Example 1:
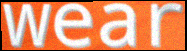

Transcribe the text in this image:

wear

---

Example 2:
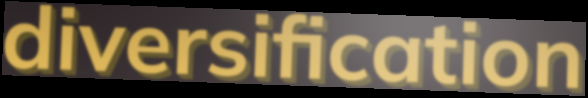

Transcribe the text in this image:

diversification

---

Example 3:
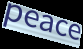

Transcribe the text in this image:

peace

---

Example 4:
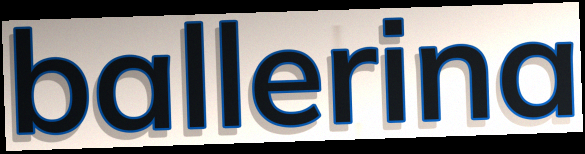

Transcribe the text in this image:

ballerina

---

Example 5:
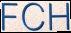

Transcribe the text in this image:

FCH